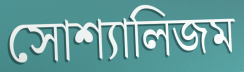
সোশ্যালিজম